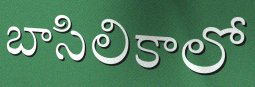
బాసిలికాలో